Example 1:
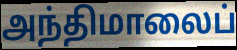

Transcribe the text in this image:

அந்திமாலைப்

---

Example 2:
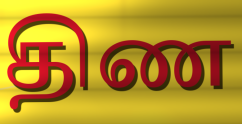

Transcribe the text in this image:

திண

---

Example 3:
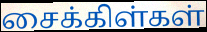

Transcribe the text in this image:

சைக்கிள்கள்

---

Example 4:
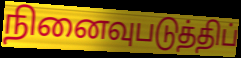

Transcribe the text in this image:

நினைவுபடுத்திப்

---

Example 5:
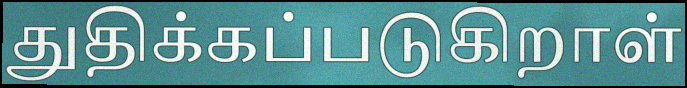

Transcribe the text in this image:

துதிக்கப்படுகிறாள்